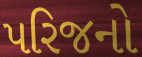
પરિજનો